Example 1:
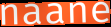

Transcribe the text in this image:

naane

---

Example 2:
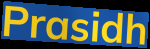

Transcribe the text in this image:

Prasidh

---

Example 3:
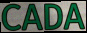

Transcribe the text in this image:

CADA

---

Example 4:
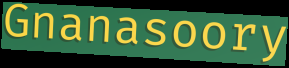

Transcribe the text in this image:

Gnanasoory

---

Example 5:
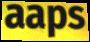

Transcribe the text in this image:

aaps